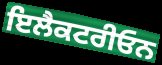
ਇਲੈਕਟਰੀਓਨ